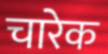
चारेक